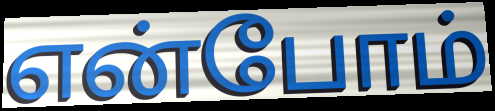
என்போம்